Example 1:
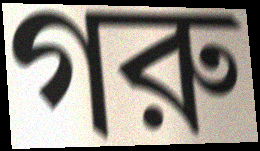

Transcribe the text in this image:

গরু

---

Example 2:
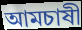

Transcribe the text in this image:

আমচাষী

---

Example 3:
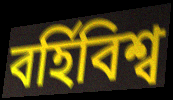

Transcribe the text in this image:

বর্হিবিশ্ব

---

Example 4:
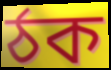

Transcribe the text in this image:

ঠক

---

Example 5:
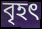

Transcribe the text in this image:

বৃহৎ